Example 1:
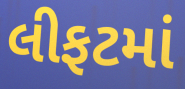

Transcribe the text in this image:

લીફટમાં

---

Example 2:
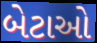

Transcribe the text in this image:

બેટાઓ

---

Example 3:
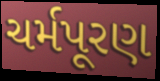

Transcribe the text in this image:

ચર્મપૂરણ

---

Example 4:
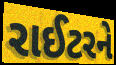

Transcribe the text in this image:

રાઈટરને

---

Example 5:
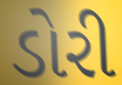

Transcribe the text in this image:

ડોરી